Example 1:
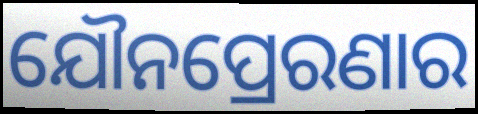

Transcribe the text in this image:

ଯୌନପ୍ରେରଣାର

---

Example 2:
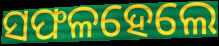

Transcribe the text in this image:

ସଫଳହେଲେ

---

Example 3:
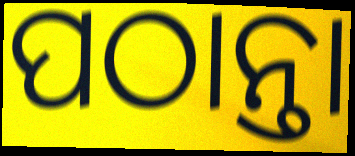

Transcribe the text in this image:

ପଠାନ୍ତା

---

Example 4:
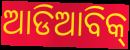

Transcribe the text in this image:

ଆଡିଆବିକ୍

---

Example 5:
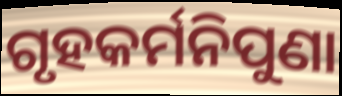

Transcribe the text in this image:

ଗୃହକର୍ମନିପୁଣା